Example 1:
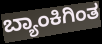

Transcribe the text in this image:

ಬ್ಯಾಂಕಿಗಿಂತ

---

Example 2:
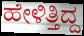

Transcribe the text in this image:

ಹೇಳಿತ್ತಿದ್ದ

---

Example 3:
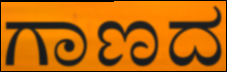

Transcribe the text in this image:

ಗಾಣದ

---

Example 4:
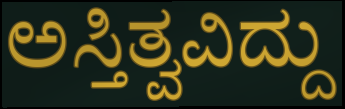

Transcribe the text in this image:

ಅಸ್ತಿತ್ವವಿದ್ದು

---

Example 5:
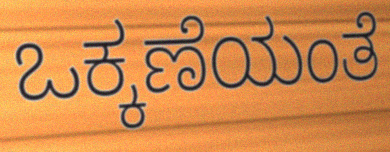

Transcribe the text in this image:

ಒಕ್ಕಣೆಯಂತೆ